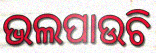
ଭଲପାଉଚି